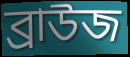
ব্রাউজ